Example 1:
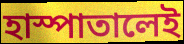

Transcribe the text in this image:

হাস্পাতালেই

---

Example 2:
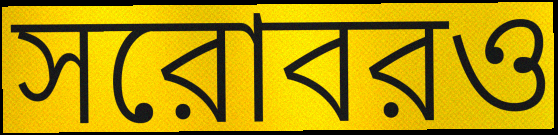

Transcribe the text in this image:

সরোবরও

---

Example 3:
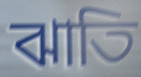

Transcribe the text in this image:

ঝাতি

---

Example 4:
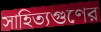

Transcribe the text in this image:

সাহিত্যগুণের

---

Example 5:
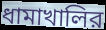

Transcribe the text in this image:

ধামাখালির